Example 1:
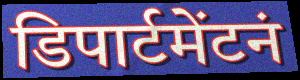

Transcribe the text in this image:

डिपार्टमेंटनं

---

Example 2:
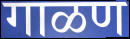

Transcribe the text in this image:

गाळण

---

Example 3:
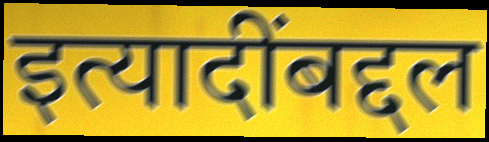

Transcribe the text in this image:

इत्यादींबद्दल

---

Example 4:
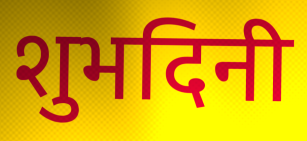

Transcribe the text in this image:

शुभदिनी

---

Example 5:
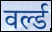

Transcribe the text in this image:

वर्ल्ड